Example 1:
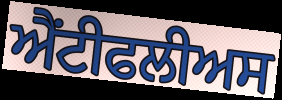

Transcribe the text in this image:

ਐਂਟੀਫਲੀਅਸ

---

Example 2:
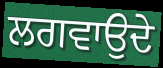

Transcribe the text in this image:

ਲਗਵਾਉਦੇ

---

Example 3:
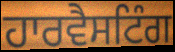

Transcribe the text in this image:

ਹਾਰਵੈਸਟਿੰਗ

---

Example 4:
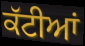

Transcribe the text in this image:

ਕੱਟੀਆਂ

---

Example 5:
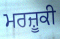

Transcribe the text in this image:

ਮਰਜ਼ੂਕੀ